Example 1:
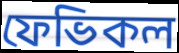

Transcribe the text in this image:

ফেভিকল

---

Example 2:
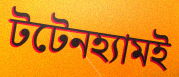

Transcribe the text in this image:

টটেনহ্যামই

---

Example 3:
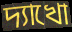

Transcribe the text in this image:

দ্যাখো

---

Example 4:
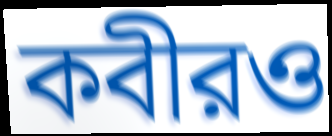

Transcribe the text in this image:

কবীরও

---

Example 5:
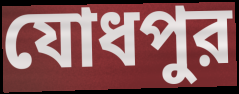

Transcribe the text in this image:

যোধপুর